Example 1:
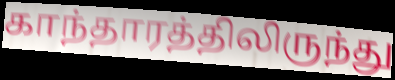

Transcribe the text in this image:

காந்தாரத்திலிருந்து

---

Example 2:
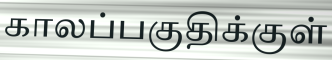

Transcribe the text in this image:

காலப்பகுதிக்குள்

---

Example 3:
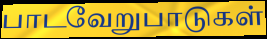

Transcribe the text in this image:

பாடவேறுபாடுகள்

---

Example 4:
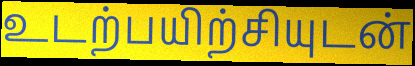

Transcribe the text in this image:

உடற்பயிற்சியுடன்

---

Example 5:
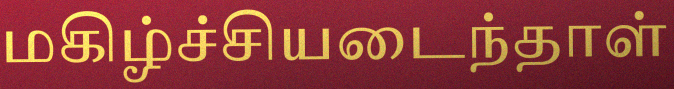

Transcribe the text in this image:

மகிழ்ச்சியடைந்தாள்